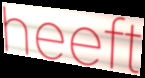
heeft